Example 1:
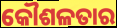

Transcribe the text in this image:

କୌଶଳତାର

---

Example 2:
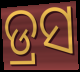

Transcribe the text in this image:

ଡ୍ରସ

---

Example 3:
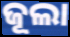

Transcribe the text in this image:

ଜୂଲା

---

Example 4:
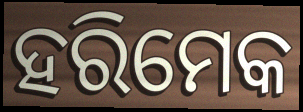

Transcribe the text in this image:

ହରିମେକ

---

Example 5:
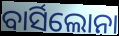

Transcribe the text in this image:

ବାର୍ସିଲୋନା